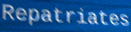
Repatriates